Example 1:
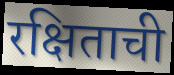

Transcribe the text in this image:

रक्षिताची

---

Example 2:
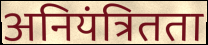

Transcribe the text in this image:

अनियंत्रितता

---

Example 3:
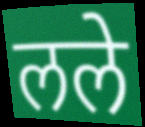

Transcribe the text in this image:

लले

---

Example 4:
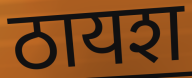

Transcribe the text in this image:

ठायश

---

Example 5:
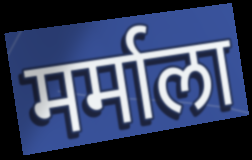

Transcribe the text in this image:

मर्माला